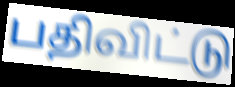
பதிவிட்டு